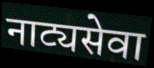
नाट्यसेवा